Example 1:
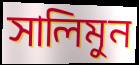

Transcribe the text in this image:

সালিমুন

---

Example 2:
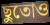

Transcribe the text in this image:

ছুতোও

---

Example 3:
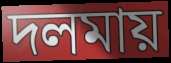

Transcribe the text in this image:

দলমায়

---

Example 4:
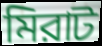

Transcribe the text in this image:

মিরাট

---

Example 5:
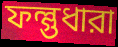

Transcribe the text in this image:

ফল্গুধারা